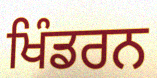
ਖਿੰਡਰਨ